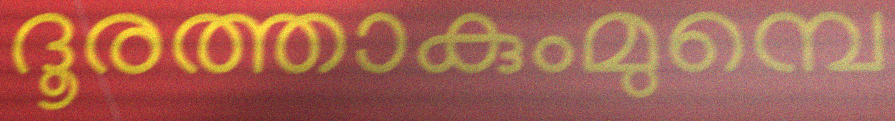
ദൂരത്താകുംമുമ്പെ